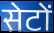
सेटों